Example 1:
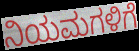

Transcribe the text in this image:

ನಿಯಮಗಳಿಗೆ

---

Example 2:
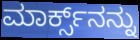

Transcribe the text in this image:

ಮಾರ್ಕ್ಸ್‌ನನ್ನು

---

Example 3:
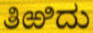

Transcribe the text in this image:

ತಿಱಿದು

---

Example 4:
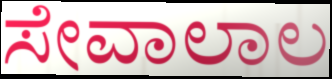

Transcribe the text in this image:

ಸೇವಾಲಾಲ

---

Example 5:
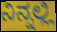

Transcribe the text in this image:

ನಿನ್ನಲ್ಲಿ